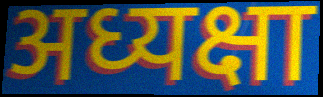
अध्यक्षा